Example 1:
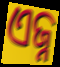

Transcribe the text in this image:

ଏଜ୍ନ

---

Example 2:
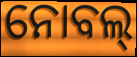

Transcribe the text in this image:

ନୋବଲ୍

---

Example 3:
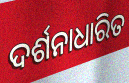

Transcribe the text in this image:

ଦର୍ଶନାଧାରିତ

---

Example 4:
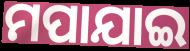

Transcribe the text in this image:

ମପାଯାଇ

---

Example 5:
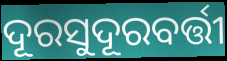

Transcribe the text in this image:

ଦୂରସୁଦୂରବର୍ତ୍ତୀ